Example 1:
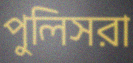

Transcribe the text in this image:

পুলিসরা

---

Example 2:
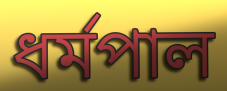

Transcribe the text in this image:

ধর্মপাল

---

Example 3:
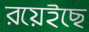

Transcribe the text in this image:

রয়েইছে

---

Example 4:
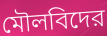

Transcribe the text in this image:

মৌলবিদের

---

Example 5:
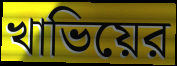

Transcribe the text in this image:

খাভিয়ের